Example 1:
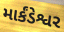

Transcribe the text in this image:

માર્કંડેશ્વર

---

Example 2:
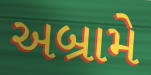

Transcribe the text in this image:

અબ્રામે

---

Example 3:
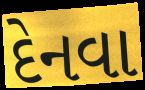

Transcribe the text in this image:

દેનવા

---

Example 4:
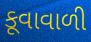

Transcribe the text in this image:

કૂવાવાળી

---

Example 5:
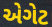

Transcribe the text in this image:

એગેટ